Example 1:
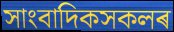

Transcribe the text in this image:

সাংবাদিকসকলৰ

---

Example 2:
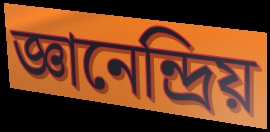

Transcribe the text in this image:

জ্ঞানেন্দ্ৰিয়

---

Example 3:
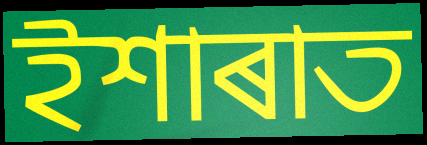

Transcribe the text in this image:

ইশাৰাত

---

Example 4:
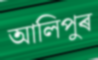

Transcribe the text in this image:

আলিপুৰ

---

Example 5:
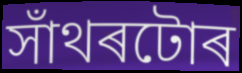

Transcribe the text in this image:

সাঁথৰটোৰ